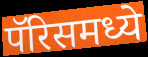
पॅरिसमध्ये